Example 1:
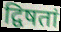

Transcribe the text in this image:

द्विषतां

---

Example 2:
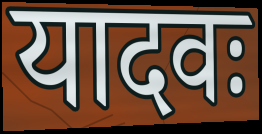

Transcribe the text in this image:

यादवः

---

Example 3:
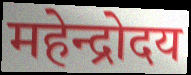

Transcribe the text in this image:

महेन्द्रोदय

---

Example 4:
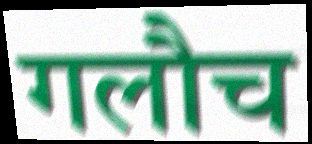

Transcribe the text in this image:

गलौच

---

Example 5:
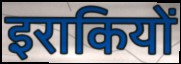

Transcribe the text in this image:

इराकियों